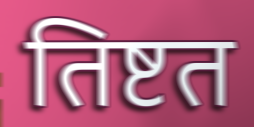
तिष्टत